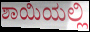
ಶಾಯಿಯಲ್ಲಿ